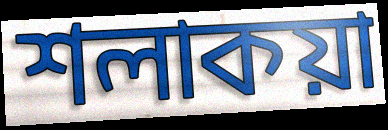
শলাকয়া